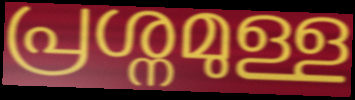
പ്രശ്നമുള്ള